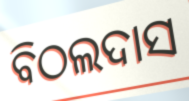
ବିଠଲଦାସ